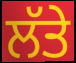
ਲੱਤੇ